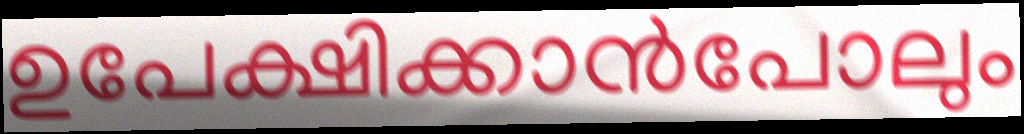
ഉപേക്ഷിക്കാൻപോലും